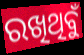
ରଖିଥିବୁଁ